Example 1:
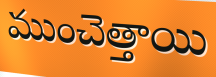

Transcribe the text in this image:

ముంచెత్తాయి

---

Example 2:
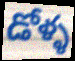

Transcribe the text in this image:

డోళ్ళ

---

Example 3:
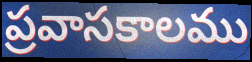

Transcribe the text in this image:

ప్రవాసకాలము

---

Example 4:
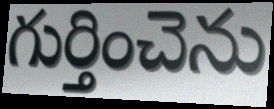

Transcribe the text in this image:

గుర్తించెను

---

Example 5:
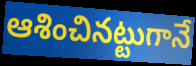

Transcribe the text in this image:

ఆశించినట్టుగానే